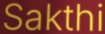
Sakthi